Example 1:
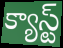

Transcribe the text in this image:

క్యాస్ట్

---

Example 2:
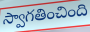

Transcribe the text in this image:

స్వాగతించింది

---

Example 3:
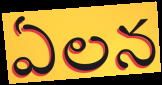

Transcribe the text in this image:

ఏలన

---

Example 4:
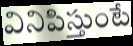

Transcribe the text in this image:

వినిపిస్తుంటే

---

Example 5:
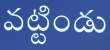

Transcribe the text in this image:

వట్టిండు